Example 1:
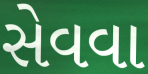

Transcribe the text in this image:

સેવવા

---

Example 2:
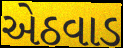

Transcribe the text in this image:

એઠવાડ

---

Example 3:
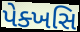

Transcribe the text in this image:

પેક્ખસિ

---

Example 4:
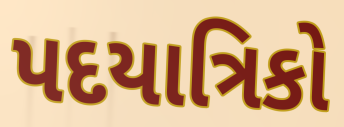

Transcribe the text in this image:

પદયાત્રિકો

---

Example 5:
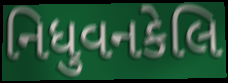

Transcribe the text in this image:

નિધુવનકેલિ